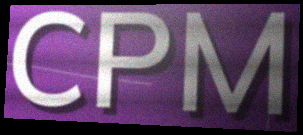
CPM